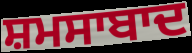
ਸ਼ਮਸਾਬਾਦ